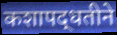
कशापद्धतीने